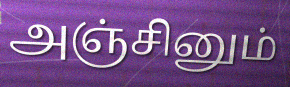
அஞ்சினும்